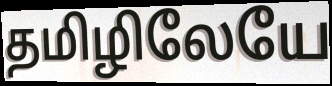
தமிழிலேயே